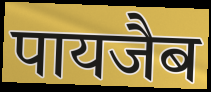
पायजैब